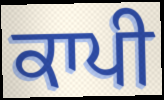
ਕਾਪੀ